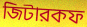
জিটারকফ